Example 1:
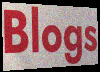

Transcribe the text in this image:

Blogs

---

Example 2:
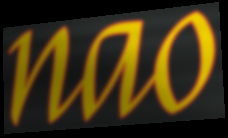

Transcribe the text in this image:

nao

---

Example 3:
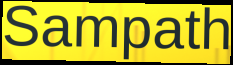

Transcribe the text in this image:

Sampath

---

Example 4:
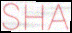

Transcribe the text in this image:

SHA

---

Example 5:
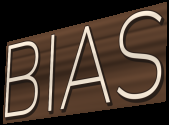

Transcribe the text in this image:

BIAS